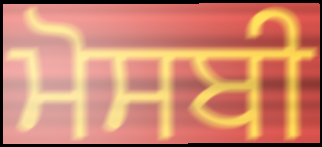
ਮੋਸਬੀ